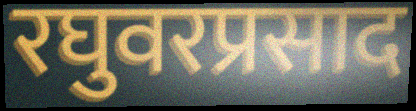
रघुवरप्रसाद